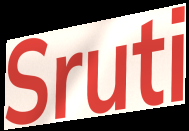
Sruti